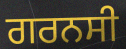
ਗਰਨਸੀ